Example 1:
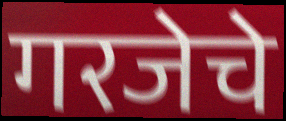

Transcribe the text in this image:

गरजेचे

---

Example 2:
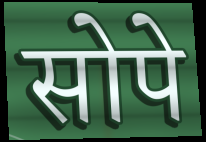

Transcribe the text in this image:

सोपे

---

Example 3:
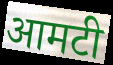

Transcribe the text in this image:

आमटी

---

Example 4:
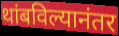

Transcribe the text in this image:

थांबविल्यानंतर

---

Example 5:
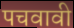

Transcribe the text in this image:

पचवावी